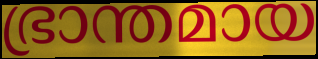
ഭ്രാന്തമായ